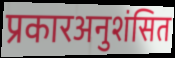
प्रकारअनुशंसित